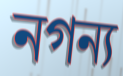
নগন্য